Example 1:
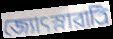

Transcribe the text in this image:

জ্যোৎস্নারাত্রি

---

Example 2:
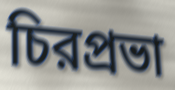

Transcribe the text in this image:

চিরপ্রভা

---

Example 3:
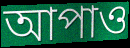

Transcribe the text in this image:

আপাও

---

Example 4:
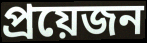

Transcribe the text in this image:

প্রয়েজন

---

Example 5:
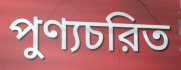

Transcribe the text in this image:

পুণ্যচরিত